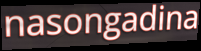
nasongadina